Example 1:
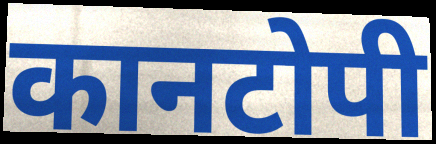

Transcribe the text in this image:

कानटोपी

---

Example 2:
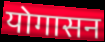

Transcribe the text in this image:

योगासन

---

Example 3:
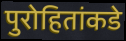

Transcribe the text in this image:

पुरोहितांकडे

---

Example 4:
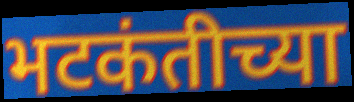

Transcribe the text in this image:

भटकंतीच्या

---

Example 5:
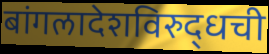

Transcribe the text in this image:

बांगलादेशविरुद्धची